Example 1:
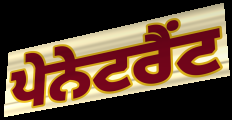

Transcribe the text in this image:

ਪੇਨੇਟਰੈਂਟ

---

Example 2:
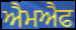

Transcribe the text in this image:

ਐਮਐਫ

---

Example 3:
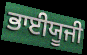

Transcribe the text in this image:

ਭਾਈਯੂਜੀ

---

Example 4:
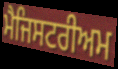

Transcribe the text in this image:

ਮੈਜਿਸਟਰੀਅਮ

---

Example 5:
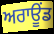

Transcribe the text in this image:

ਅਰਾਊਂਡ